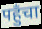
पहुँचा